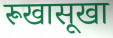
रूखासूखा